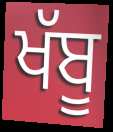
ਖੱਬੂ